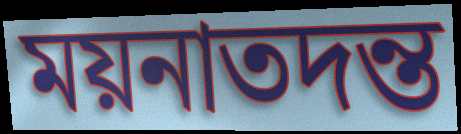
ময়নাতদন্ত